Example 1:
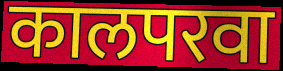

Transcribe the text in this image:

कालपरवा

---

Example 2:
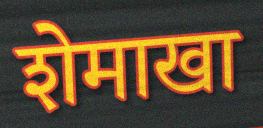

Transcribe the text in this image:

शेमाखा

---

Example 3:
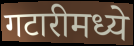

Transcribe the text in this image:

गटारीमध्ये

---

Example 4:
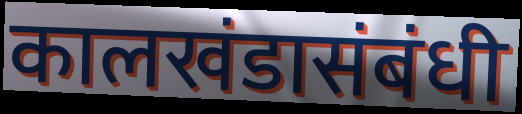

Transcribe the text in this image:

कालखंडासंबंधी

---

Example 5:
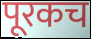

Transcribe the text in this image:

पूरकच